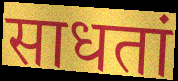
साधतां